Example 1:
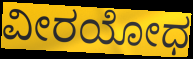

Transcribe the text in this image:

ವೀರಯೋಧ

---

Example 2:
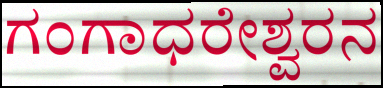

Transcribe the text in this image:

ಗಂಗಾಧರೇಶ್ವರನ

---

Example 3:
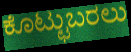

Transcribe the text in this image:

ಕೊಟ್ಟುಬರಲು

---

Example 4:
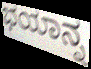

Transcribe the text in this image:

ಭಯಾನ್ನ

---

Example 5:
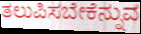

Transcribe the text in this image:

ತಲುಪಿಸಬೇಕೆನ್ನುವ